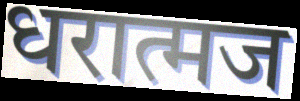
धरात्मज